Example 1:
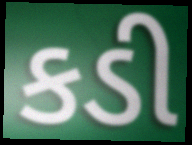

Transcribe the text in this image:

કડી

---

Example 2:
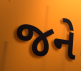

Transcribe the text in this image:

જને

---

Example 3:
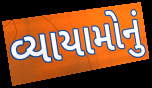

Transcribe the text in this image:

વ્યાયામોનું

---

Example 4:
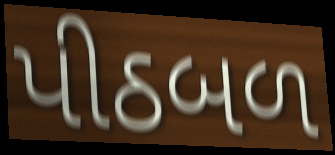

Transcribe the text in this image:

પીઠબળ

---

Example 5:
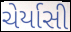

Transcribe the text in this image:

ચેર્યાસી